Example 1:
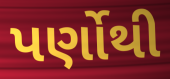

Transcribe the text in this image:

પર્ણોથી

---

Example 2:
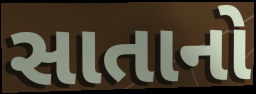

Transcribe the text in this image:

સાતાનો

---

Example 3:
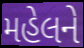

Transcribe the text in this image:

મહેલને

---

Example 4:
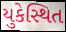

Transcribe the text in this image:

યુકેસ્થિત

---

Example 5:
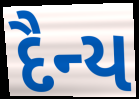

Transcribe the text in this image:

દૈન્ય